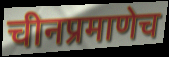
चीनप्रमाणेच